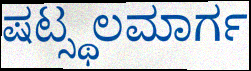
ಷಟ್ಸ್ಥಲಮಾರ್ಗ